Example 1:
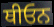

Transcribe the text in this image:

ਥੀਓਨ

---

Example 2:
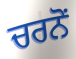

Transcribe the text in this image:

ਚਰਨੋਂ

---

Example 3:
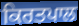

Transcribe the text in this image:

ਕਿਰਤਪਾਲ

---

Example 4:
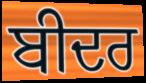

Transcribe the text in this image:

ਬੀਦਰ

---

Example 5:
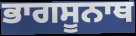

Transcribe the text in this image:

ਭਾਗਸੂਨਾਥ